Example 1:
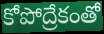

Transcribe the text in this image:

కోపోద్రేకంతో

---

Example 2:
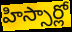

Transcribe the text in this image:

హిస్సార్లో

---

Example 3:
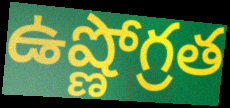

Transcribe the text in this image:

ఉష్ణోగ్రత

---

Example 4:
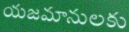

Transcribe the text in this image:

యజమానులకు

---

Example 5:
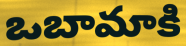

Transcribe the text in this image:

ఒబామాకి